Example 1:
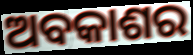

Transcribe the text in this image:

ଅବକାଶର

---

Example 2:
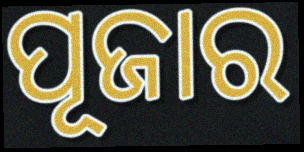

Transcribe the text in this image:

ପୂଜାର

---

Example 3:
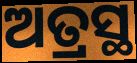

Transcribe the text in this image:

ଅତ୍ରସ୍ଥ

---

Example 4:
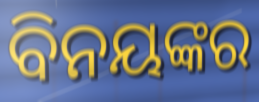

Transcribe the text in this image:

ବିନୟଙ୍କର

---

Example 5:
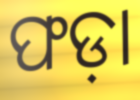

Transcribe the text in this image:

ଫଡ଼ା